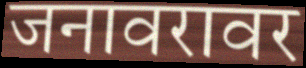
जनावरावर